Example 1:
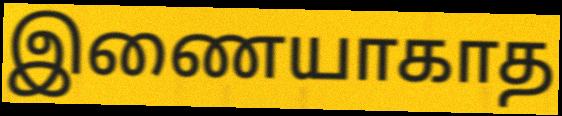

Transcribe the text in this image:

இணையாகாத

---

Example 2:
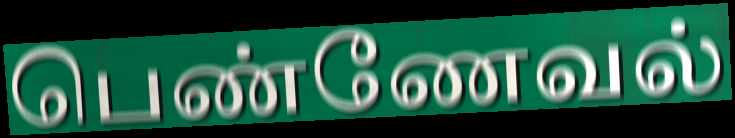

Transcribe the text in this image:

பெண்ணேவல்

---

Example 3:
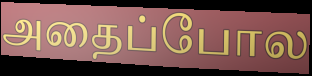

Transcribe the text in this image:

அதைப்போல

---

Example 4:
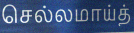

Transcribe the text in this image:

செல்லமாய்த்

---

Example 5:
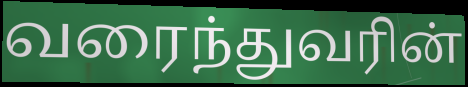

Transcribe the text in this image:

வரைந்துவரின்